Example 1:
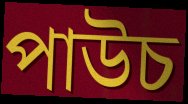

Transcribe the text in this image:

পাউচ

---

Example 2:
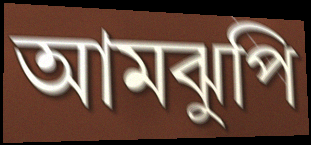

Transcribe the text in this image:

আমঝুপি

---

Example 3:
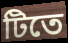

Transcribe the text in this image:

টিতে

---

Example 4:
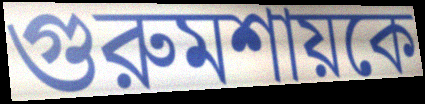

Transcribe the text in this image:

গুরুমশায়কে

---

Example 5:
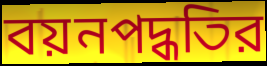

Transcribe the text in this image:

বয়নপদ্ধতির